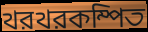
থরথরকম্পিত